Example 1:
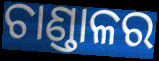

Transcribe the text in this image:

ଚାଣ୍ଡାଳର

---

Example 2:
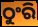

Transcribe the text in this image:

ଠୁଂରି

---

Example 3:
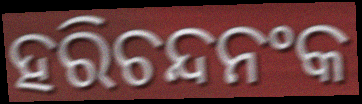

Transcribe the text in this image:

ହରିଚନ୍ଦନଂକ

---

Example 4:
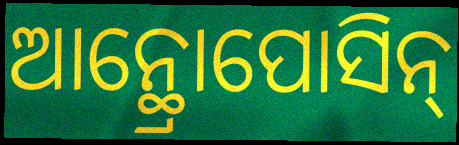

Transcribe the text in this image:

ଆନ୍ଥ୍ରୋପୋସିନ୍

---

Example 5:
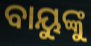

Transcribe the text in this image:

ବାୟୁଙ୍କୁ